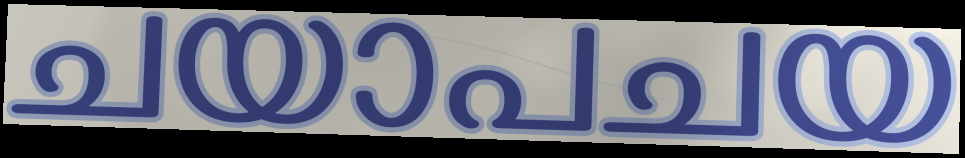
ചയാപചയ